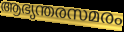
ആഭ്യന്തരസമരം